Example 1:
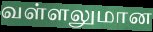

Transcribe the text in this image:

வள்ளலுமான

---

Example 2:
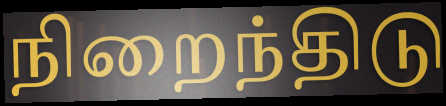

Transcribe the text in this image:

நிறைந்திடு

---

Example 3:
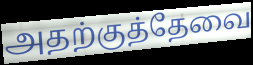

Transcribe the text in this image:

அதற்குத்தேவை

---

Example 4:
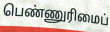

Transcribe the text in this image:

பெண்ணுரிமைப்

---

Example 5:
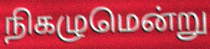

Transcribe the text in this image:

நிகழுமென்று